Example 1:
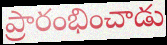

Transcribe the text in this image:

ప్రారంభించాడు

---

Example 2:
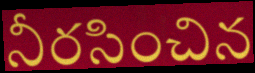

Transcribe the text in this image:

నీరసించిన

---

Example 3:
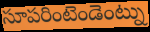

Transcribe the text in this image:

సూపరింటెండెంట్ను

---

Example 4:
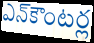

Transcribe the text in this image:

ఎన్‌కౌంటర్ల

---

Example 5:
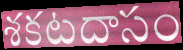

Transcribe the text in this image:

శకటదాసం